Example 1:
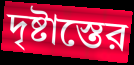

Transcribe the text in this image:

দৃষ্টাস্তের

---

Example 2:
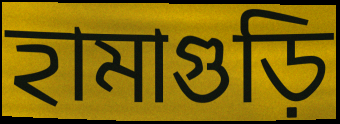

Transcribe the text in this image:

হামাগুড়ি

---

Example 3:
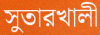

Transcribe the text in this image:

সুতারখালী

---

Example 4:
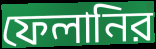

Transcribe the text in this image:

ফেলানির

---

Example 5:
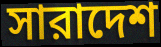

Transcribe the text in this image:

সারাদেশ